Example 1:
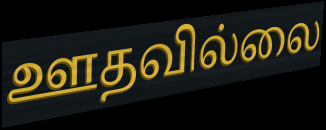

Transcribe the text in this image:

ஊதவில்லை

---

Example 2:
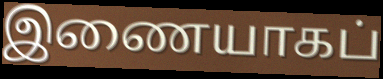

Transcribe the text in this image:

இணையாகப்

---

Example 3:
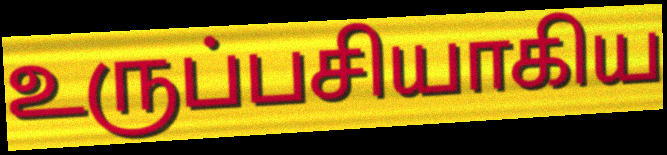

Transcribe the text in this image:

உருப்பசியாகிய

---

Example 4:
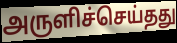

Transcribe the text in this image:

அருளிச்செய்தது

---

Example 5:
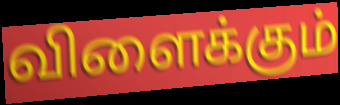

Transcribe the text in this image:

விளைக்கும்